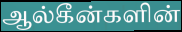
ஆல்கீன்களின்